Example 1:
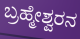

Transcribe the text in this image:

ಬ್ರಹ್ಮೇಶ್ವರನ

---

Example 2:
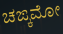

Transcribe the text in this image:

ಚಙ್ಕಮೋ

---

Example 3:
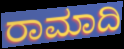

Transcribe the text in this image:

ರಾಮಾದಿ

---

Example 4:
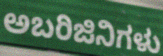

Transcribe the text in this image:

ಅಬರಿಜಿನಿಗಳು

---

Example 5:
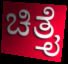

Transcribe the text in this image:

ಚಿತ್ತೈ